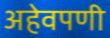
अहेवपणी